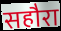
सहौरा